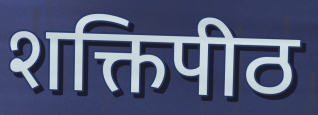
शक्तिपीठ